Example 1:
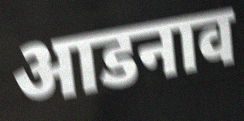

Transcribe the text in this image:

आडनाव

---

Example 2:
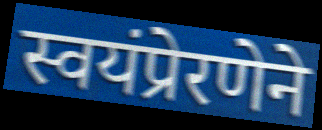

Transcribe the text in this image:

स्वयंप्रेरणेने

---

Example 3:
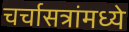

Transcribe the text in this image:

चर्चासत्रांमध्ये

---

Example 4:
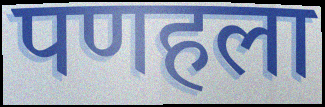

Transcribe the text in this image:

पणहला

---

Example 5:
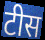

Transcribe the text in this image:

टीस